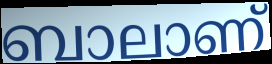
ബാലാണ്